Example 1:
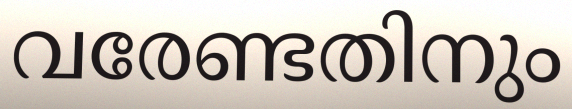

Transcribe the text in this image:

വരേണ്ടതിനും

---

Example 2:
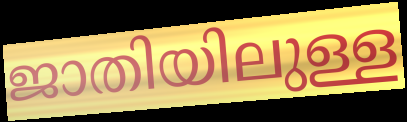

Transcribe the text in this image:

ജാതിയിലുള്ള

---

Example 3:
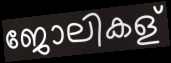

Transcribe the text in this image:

ജോലികള്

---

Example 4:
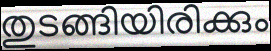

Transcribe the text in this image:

തുടങ്ങിയിരിക്കും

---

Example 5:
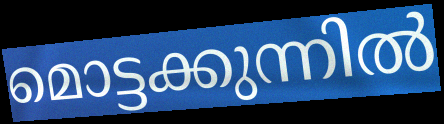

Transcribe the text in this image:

മൊട്ടക്കുന്നിൽ